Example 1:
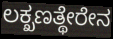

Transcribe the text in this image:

ಲಕ್ಖಣತ್ಥೇರೇನ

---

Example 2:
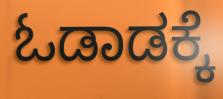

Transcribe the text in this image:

ಓಡಾಡಕ್ಕೆ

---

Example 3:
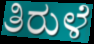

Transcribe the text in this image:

ತಿರುಳೆ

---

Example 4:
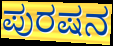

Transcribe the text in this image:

ಪುರಷನ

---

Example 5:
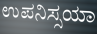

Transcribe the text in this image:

ಉಪನಿಸ್ಸಯಾ